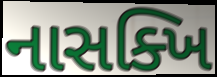
નાસક્ખિ